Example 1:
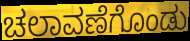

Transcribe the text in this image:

ಚಲಾವಣೆಗೊಂಡು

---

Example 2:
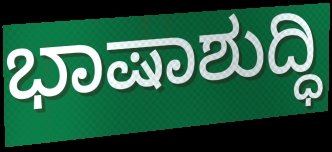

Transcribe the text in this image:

ಭಾಷಾಶುದ್ಧಿ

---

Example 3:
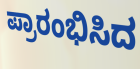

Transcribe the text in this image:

ಪ್ರಾರಂಭಿಸಿದ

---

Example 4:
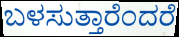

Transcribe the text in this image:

ಬಳಸುತ್ತಾರೆಂದರೆ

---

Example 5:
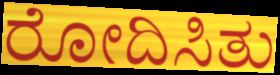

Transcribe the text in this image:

ರೋದಿಸಿತು